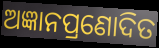
ଅଜ୍ଞାନପ୍ରଣୋଦିତ